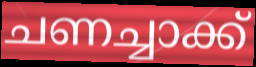
ചണച്ചാക്ക്